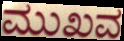
ಮುಖವ